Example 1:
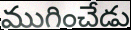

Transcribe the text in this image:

ముగించేడు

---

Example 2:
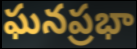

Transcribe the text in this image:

ఘనప్రభా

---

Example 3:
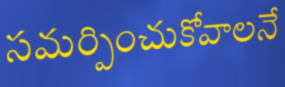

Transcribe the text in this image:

సమర్పించుకోవాలనే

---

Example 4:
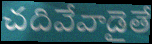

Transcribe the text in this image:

చదివేవాడైతే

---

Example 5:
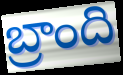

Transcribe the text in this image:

బ్రాంది